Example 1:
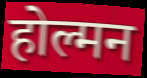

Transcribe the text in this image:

होल्मन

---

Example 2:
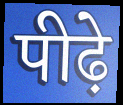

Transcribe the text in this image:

पीढ़े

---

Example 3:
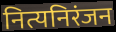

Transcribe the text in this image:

नित्यनिरंजन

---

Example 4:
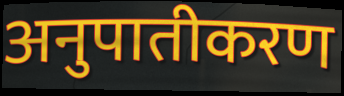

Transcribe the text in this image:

अनुपातीकरण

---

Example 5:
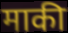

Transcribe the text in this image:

माकी